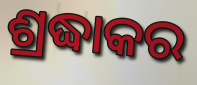
ଶ୍ରଦ୍ଧାକର